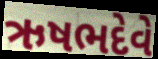
ઋષભદેવે